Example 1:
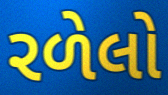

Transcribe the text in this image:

રળેલો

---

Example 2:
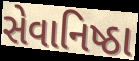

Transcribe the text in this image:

સેવાનિષ્ઠા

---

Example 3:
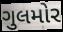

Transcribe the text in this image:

ગુલમોર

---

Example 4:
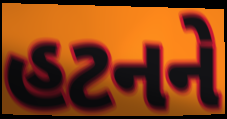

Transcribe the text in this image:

હટનને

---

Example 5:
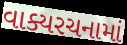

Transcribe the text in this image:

વાક્યરચનામાં